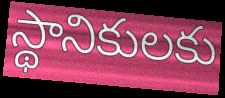
స్థానికులకు